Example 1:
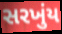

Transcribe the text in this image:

સરખુંય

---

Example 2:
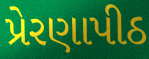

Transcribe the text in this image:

પ્રેરણાપીઠ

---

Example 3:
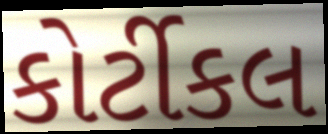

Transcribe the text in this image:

કોર્ટીકલ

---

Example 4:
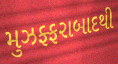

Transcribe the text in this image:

મુઝફ્ફરાબાદથી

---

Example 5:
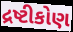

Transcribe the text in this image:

દ્રષ્ટીકોણ